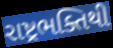
રાષ્ટ્રભક્તિથી